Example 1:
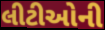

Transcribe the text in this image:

લીટીઓની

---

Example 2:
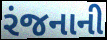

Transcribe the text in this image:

રંજનાની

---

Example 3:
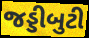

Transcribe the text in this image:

જડ્ડીબુટી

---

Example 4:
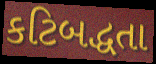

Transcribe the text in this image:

કટિબદ્ધતા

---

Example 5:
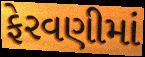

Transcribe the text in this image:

ફેરવણીમાં